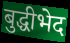
बुद्धीभेद